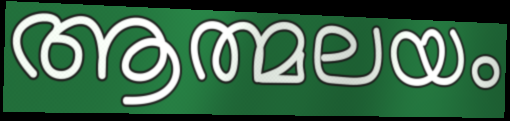
ആത്മലയം